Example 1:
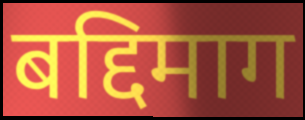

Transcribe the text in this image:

बद्दिमाग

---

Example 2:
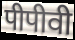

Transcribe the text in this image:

पीपीवी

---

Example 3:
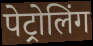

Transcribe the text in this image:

पेट्रोलिंग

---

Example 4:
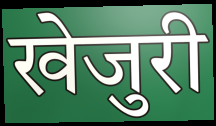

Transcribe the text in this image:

खेजुरी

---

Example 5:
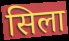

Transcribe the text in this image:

सिला